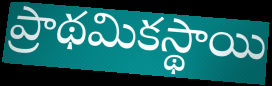
ప్రాథమికస్థాయి